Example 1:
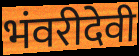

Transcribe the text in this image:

भंवरीदेवी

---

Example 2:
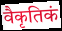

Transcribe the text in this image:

वैकृतिकं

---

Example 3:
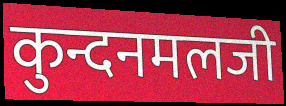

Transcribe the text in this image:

कुन्दनमलजी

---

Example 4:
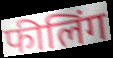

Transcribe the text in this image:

फीलिंग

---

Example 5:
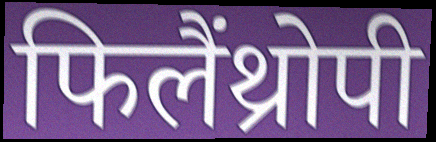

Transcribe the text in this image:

फिलैंथ्रोपी